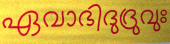
ഏവാഭിദുദ്രുവുഃ